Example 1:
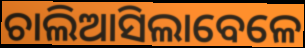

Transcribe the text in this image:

ଚାଲିଆସିଲାବେଳେ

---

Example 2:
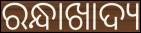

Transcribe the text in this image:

ରନ୍ଧାଖାଦ୍ୟ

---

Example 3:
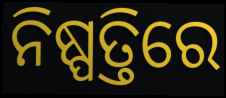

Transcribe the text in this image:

ନିଷ୍ପତ୍ତିରେ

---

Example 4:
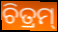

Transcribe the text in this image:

ଚିତ୍ରମ୍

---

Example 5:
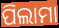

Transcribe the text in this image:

ପିଲାମା